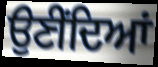
ਉਣੀਂਦਿਆਂ